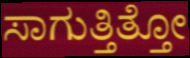
ಸಾಗುತ್ತಿತ್ತೋ